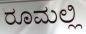
ರೂಮಲ್ಲಿ